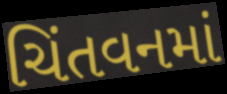
ચિંતવનમાં